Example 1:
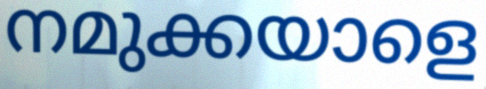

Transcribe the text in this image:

നമുക്കയാളെ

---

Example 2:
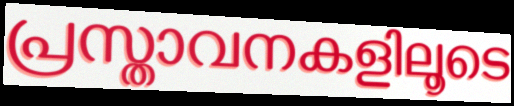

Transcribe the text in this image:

പ്രസ്താവനകളിലൂടെ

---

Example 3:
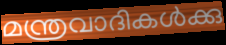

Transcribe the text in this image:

മന്ത്രവാദികൾക്കു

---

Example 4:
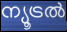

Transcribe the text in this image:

ന്യൂട്രൽ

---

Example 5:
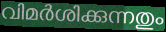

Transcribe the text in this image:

വിമർശിക്കുന്നതും